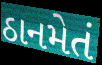
ઠાનમેતં